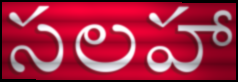
సలహా